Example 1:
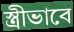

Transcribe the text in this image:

স্ত্রীভাবে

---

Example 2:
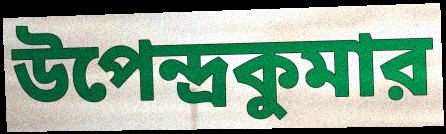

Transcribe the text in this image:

উপেন্দ্রকুমার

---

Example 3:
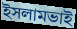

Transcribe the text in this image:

ইসলামভাই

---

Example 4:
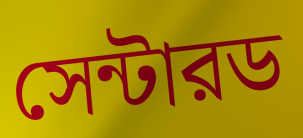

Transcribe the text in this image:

সেন্টারড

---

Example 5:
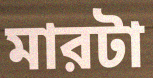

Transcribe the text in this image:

মারটা